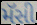
મૅસી